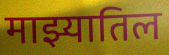
माझ्यातिल